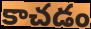
కాచడం